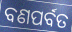
ବଣପର୍ବତ